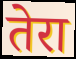
तेरा